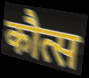
कौत्स